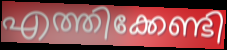
എത്തിക്കേണ്ടി